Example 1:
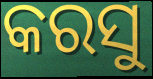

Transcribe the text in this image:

କରସୁ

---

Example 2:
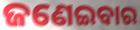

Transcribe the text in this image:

ଜଣେଇବାର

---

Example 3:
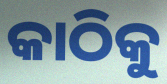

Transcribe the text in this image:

କାଠିକୁ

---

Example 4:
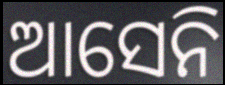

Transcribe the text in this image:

ଆସେନି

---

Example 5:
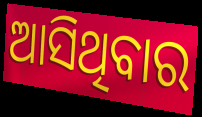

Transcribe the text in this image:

ଆସିଥିବାର